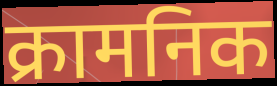
क्रामनिक